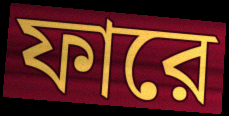
ফারে